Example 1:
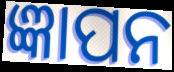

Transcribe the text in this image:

ଜ୍ଞାପନ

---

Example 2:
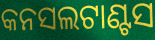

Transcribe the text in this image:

କନସଲଟାଣ୍ଟସ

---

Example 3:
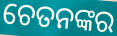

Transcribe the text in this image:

ଚେତନଙ୍କର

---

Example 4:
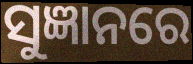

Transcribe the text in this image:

ସୁଜ୍ଞାନରେ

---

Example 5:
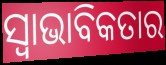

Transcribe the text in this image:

ସ୍ୱାଭାବିକତାର